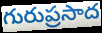
గురుప్రసాద